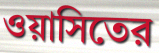
ওয়াসিতের